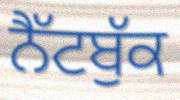
ਨੈੱਟਬੁੱਕ